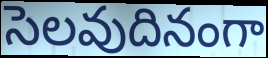
సెలవుదినంగా